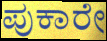
ಪುಕಾರೇ